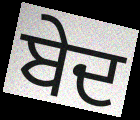
ਬੇਦ